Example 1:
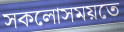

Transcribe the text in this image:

সকলোসময়তে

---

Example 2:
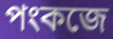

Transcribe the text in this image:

পংকজে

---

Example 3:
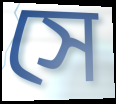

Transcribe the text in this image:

সে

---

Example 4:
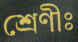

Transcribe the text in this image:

শ্ৰেণীঃ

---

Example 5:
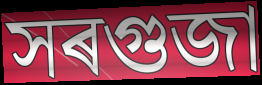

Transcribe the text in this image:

সৰগুজা